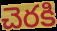
చెరకి